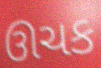
ઊચક